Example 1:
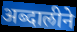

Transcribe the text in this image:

अब्दालीने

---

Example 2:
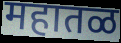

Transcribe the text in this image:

महातळ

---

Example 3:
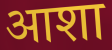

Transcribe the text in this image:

आशा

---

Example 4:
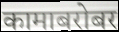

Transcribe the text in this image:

कामाबरोबर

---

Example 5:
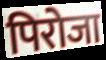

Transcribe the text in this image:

पिरोजा